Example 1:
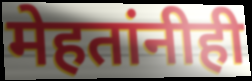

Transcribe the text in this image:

मेहतांनीही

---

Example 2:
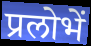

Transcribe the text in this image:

प्रलोभें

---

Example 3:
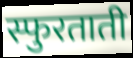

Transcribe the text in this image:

स्फुरताती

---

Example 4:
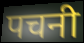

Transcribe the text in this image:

पचनी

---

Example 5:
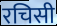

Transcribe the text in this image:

रचिसी